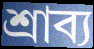
শ্রাব্য